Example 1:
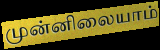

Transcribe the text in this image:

முன்னிலையாம்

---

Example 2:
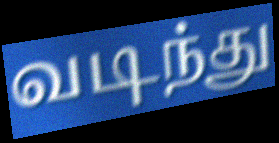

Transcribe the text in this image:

வடிந்து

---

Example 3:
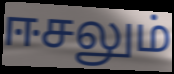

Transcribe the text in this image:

ஈசலும்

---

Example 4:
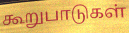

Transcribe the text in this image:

கூறுபாடுகள்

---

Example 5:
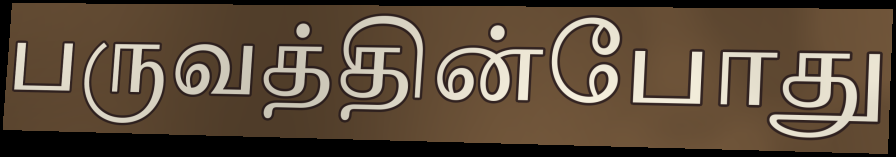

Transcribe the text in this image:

பருவத்தின்போது